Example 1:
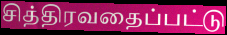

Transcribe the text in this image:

சித்திரவதைப்பட்டு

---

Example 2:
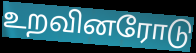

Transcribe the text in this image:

உறவினரோடு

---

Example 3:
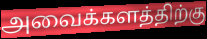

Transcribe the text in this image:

அவைக்களத்திற்கு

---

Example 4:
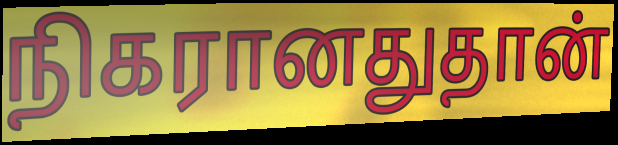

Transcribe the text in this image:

நிகரானதுதான்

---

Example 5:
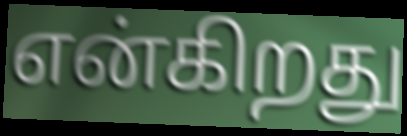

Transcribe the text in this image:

என்கிறது